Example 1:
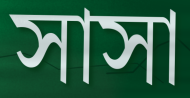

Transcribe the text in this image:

সাসা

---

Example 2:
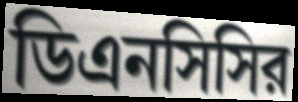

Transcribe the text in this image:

ডিএনসিসির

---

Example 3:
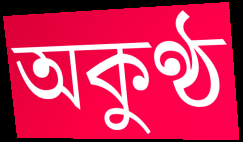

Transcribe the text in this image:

অকুণ্ঠ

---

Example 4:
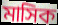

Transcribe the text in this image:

মাসিক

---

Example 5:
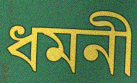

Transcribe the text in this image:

ধমনী